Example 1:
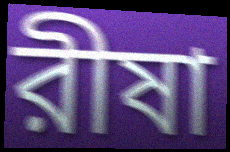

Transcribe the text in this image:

রীষা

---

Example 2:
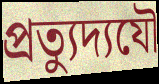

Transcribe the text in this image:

প্রত্যুদ্যযৌ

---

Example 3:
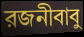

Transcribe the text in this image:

রজনীবাবু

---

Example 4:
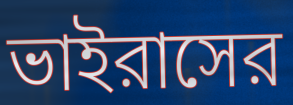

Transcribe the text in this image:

ভাইরাসের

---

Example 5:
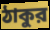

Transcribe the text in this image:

ঠাকুর